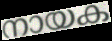
നായക